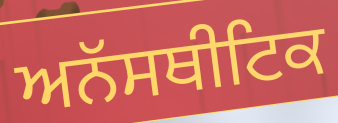
ਅਨੱਸਥੀਟਿਕ